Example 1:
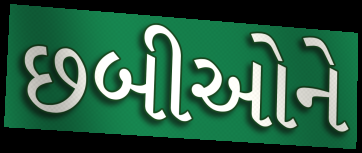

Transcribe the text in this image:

છબીઓને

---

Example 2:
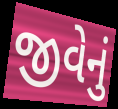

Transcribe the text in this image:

જીવેનું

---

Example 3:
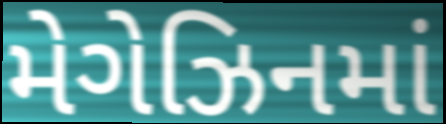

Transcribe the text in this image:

મેગેઝિનમાં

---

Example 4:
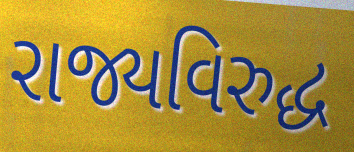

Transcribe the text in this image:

રાજ્યવિરુદ્ધ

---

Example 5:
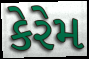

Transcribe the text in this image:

કેરેમ